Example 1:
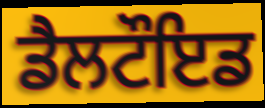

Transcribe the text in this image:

ਡੈਲਟੌਇਡ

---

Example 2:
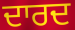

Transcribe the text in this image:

ਦਾਰਦ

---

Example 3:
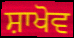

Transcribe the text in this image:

ਸ਼ਾਖੋਵ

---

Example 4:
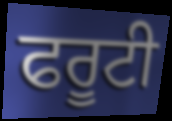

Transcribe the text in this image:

ਫਰੂਟੀ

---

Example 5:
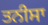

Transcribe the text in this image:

ਤਨੀਸਾ